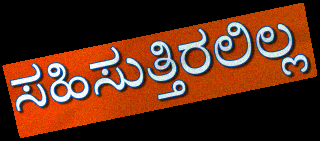
ಸಹಿಸುತ್ತಿರಲಿಲ್ಲ